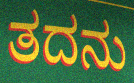
ತದನು